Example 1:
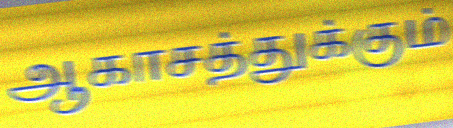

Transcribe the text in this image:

ஆகாசத்துக்கும்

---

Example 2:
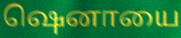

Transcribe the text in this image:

ஷெனாயை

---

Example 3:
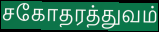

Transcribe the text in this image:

சகோதரத்துவம்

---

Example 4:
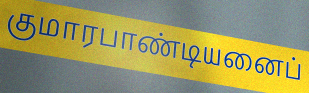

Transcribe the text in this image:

குமாரபாண்டியனைப்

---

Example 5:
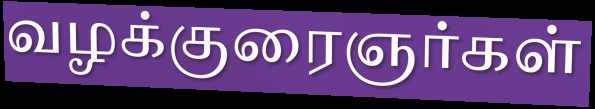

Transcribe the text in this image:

வழக்குரைஞர்கள்